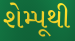
શેમ્પૂથી